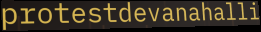
protestdevanahalli